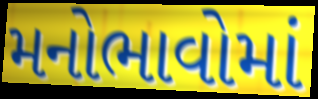
મનોભાવોમાં